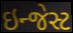
ઇન્જેસ્ટ